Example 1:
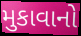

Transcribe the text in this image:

મુકાવાનો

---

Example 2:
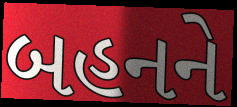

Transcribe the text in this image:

બહનને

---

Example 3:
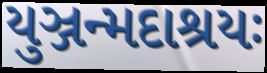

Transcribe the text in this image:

યુઞ્જન્મદાશ્રયઃ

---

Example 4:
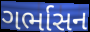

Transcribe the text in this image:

ગર્ભાસન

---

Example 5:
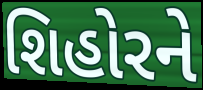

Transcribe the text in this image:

શિહોરને